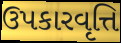
ઉપકારવૃત્તિ